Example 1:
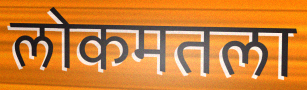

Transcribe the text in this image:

लोकमतला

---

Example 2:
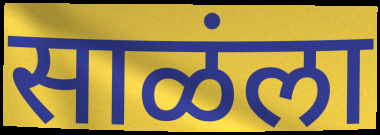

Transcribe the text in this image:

साळंला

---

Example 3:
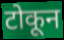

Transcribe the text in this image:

टोकून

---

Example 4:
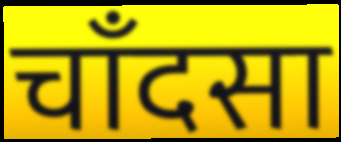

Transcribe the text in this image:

चाँदसा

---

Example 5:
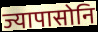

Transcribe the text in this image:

ज्यापासोनि